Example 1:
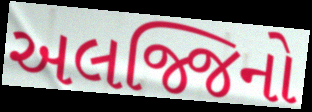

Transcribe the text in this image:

અલજ્જિનો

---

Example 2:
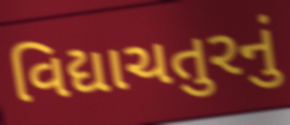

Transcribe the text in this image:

વિદ્યાચતુરનું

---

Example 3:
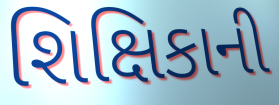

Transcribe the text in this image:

શિક્ષિકાની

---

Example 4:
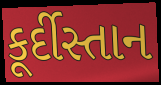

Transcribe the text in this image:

કૂર્દીસ્તાન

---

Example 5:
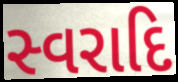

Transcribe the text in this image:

સ્વરાદિ